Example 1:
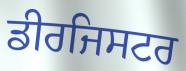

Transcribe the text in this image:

ਡੀਰਜਿਸਟਰ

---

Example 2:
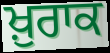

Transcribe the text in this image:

ਖ਼ੁਰਾਕ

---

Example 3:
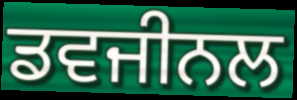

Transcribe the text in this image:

ਡਵਜੀਨਲ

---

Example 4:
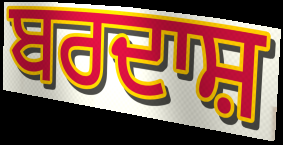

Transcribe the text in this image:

ਬਰਦਾਸ਼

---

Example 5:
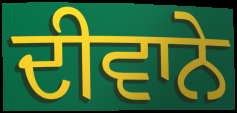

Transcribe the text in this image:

ਦੀਵਾਨੇ